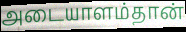
அடையாளம்தான்